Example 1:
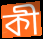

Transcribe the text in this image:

কী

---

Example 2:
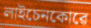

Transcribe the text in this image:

লাইচেনকোৱে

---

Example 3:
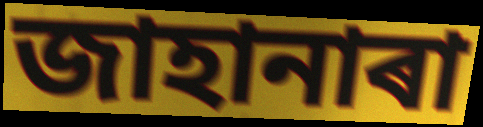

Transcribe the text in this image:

জাহানাৰা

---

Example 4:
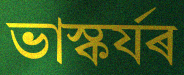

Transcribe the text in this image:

ভাস্কৰ্যৰ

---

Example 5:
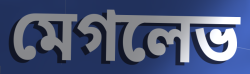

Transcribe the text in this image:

মেগলেভ